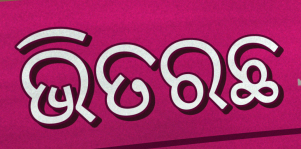
ଭିତରଛ